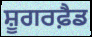
ਸ਼ੂਗਰਫ਼ੈਡ